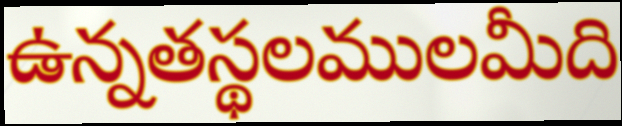
ఉన్నతస్థలములమీది